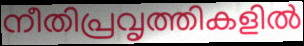
നീതിപ്രവൃത്തികളിൽ